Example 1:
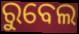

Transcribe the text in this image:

ରୁବେଲ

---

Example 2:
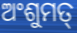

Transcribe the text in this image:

ଅଂଶୁମତ୍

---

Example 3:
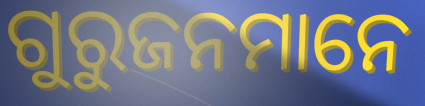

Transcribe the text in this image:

ଗୁରୁଜନମାନେ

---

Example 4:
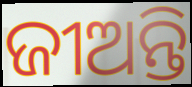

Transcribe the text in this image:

ଜୀଅନ୍ତି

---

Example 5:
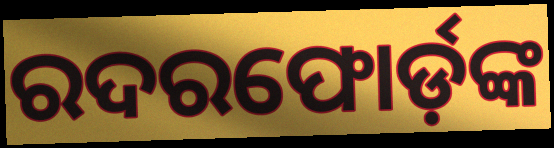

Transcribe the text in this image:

ରଦରଫୋର୍ଡ଼ଙ୍କ